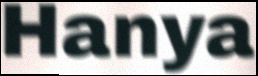
Hanya